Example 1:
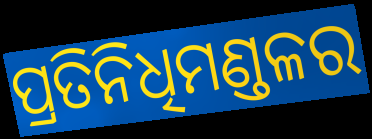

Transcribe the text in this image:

ପ୍ରତିନିଧିମଣ୍ଡଳର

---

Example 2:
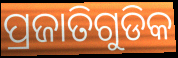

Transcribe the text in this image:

ପ୍ରଜାତିଗୁଡିକ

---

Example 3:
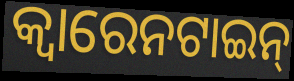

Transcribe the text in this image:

କ୍ୱାରେନଟାଇନ୍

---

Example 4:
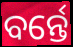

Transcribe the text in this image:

ବର୍ନ୍ତେ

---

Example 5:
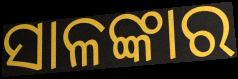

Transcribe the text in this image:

ସାଳଙ୍କାର